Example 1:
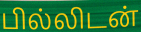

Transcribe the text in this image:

பில்லிடன்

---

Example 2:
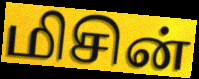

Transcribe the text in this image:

மிசின்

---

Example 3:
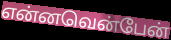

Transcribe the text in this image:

என்னவென்பேன்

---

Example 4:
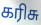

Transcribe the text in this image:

கரிசு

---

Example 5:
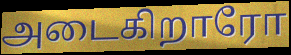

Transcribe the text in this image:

அடைகிறாரோ